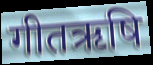
गीतऋषि